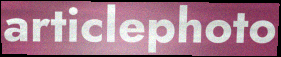
articlephoto